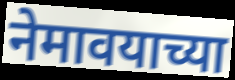
नेमावयाच्या